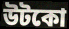
উটকো